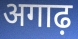
अगाढ़